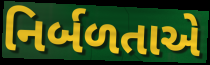
નિર્બળતાએ